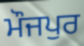
ਮੌਜਪੁਰ